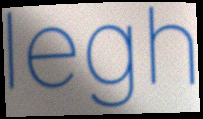
legh